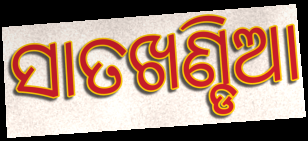
ସାତଖଣ୍ଡିଆ